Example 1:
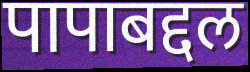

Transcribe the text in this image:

पापाबद्दल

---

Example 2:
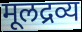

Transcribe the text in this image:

मूलद्रव्य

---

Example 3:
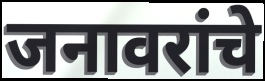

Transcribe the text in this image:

जनावरांचे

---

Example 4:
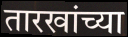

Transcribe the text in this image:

तारखांच्या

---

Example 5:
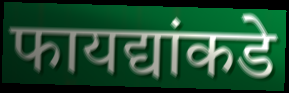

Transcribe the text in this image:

फायद्यांकडे